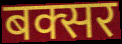
बक्‍सर